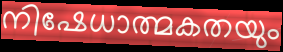
നിഷേധാത്മകതയും